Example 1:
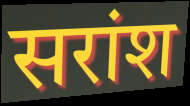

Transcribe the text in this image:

सरांश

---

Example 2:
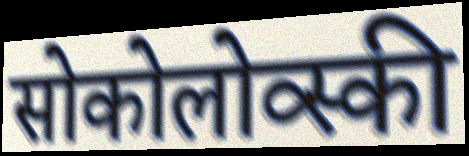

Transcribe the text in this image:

सोकोलोव्स्की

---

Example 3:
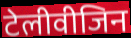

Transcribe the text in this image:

टेलीवीजिन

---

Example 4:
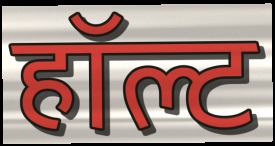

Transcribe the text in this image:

हॉल्ट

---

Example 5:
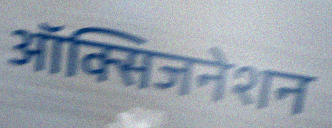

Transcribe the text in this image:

ऑक्सिजनेशन